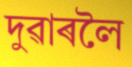
দুৱাৰলৈ